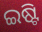
ଇଷ୍ଟି